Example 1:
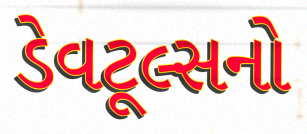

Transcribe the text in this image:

ડેવટૂલ્સનો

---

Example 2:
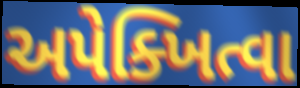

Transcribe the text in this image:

અપેક્ખિત્વા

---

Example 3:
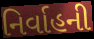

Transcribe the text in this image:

નિર્વાહની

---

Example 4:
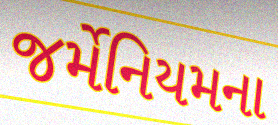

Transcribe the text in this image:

જર્મેનિયમના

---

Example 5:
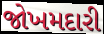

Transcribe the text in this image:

જોખમદારી